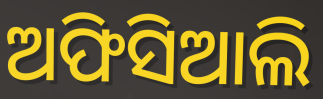
ଅଫିସିଆଲି